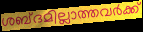
ശബ്ദമില്ലാത്തവർക്ക്